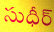
సుధీర్